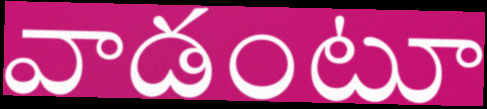
వాడంటూ